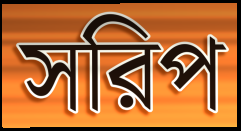
সরিপ